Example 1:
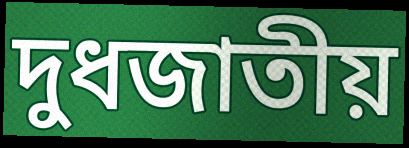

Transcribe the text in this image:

দুধজাতীয়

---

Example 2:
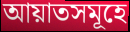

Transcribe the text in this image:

আয়াতসমূহে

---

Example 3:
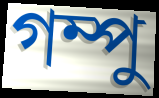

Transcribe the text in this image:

গম্পু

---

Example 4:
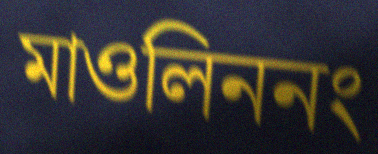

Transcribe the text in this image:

মাওলিননং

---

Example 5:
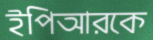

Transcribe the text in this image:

ইপিআরকে